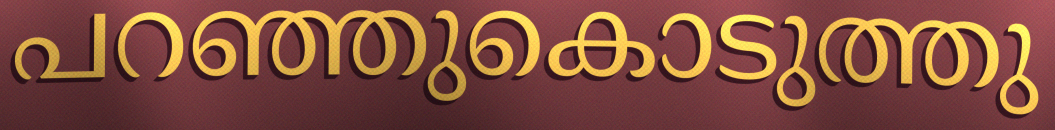
പറഞ്ഞുകൊടുത്തു